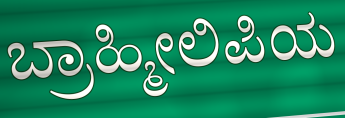
ಬ್ರಾಹ್ಮೀಲಿಪಿಯ